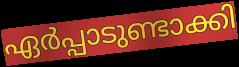
ഏർപ്പാടുണ്ടാക്കി